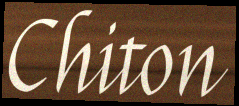
Chiton